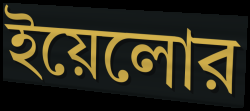
ইয়েলোর